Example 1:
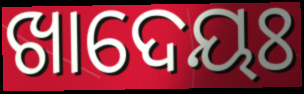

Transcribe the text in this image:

ଖାଦେୟଃ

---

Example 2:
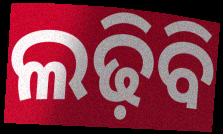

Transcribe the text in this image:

ଲଢ଼ିବି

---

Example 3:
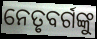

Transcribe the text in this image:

ନେତୃବର୍ଗଙ୍କୁ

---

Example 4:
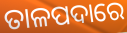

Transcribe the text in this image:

ତାଳପଦାରେ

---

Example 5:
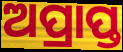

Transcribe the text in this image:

ଅପ୍ରାପ୍ତ